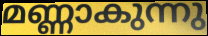
മണ്ണാകുന്നു